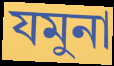
যমুনা